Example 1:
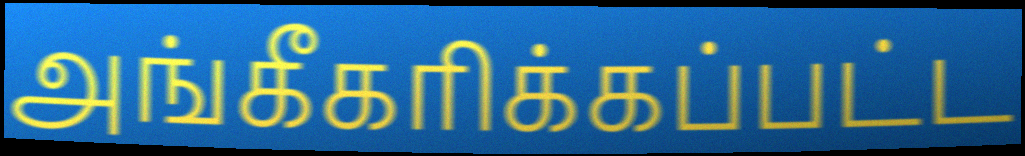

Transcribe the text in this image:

அங்கீகரிக்கப்பட்ட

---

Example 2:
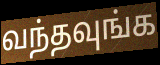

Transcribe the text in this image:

வந்தவுங்க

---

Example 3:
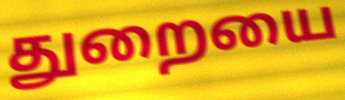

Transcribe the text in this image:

துறையை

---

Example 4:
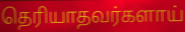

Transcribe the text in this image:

தெரியாதவர்களாய்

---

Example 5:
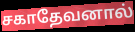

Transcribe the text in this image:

சகாதேவனால்